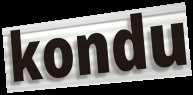
kondu